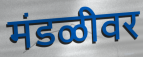
मंडळीवर